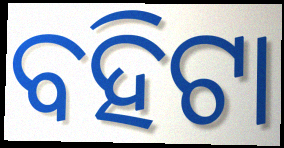
ବହିଟା